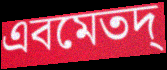
এবমেতদ্